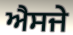
ਐਸਜੇ